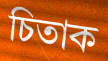
চিতাক